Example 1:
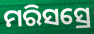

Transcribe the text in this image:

ମରିସସ୍ରେ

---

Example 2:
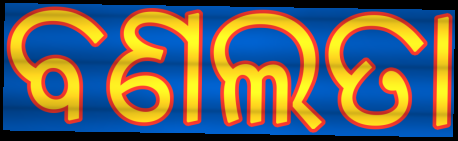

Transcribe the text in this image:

ବଣଲତା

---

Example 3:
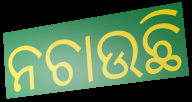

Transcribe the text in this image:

ନଚାଉଛି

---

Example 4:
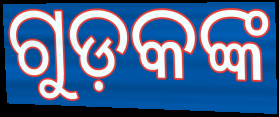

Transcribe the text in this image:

ଗୁଡ଼କଙ୍କ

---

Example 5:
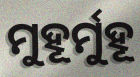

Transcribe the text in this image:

ମୁହୂର୍ମୁହୂ